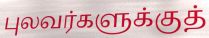
புலவர்களுக்குத்